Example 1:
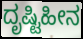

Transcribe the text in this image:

ದೃಷ್ಟಿಹೀನ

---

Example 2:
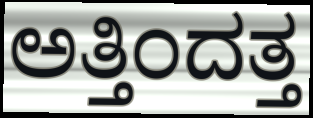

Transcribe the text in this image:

ಅತ್ತಿಂದತ್ತ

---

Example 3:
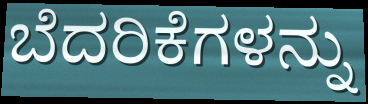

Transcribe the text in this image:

ಬೆದರಿಕೆಗಳನ್ನು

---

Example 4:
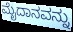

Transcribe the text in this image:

ಮೈದಾನವನ್ನು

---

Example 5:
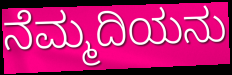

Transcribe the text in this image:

ನೆಮ್ಮದಿಯನು